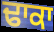
ਢਾਕਾ